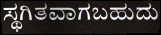
ಸ್ಥಗಿತವಾಗಬಹುದು